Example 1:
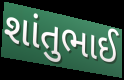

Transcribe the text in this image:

શાંતુભાઈ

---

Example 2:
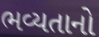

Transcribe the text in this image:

ભવ્યતાનો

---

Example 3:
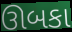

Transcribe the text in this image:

ઊબકા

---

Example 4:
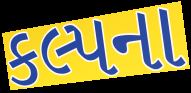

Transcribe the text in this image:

કલ્પના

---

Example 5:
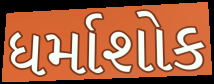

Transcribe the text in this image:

ધર્માશોક